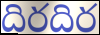
దిరదిర